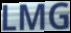
LMG